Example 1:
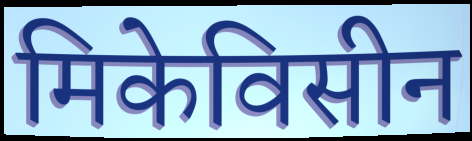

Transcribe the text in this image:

मिकेविसीन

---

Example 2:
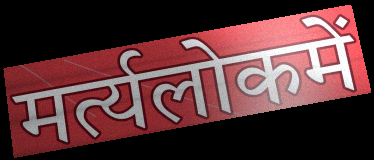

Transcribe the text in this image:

मर्त्यलोकमें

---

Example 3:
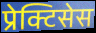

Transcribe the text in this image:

प्रेक्टिसेस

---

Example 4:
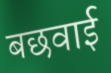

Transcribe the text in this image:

बछवाई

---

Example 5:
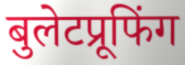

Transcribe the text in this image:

बुलेटप्रूफिंग